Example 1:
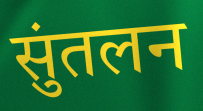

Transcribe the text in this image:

सुंतलन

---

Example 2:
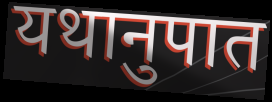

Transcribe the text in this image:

यथानुपात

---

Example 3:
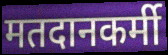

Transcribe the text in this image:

मतदानकर्मी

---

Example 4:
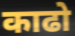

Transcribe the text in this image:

काढो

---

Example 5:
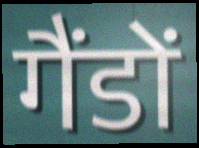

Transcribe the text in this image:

गैंडों